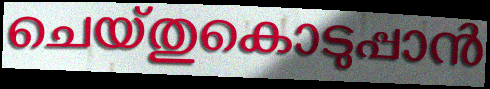
ചെയ്തുകൊടുപ്പാൻ